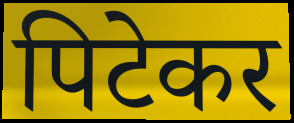
पिटेकर